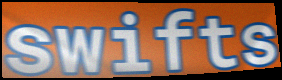
swifts